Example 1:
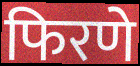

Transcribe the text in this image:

फिरणे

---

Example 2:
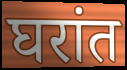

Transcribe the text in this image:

घरांत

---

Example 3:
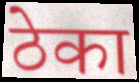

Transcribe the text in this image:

ठेका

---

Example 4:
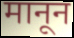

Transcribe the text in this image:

मानून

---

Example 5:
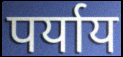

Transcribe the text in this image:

पर्याय